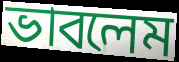
ভাবলেম